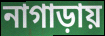
নাগাড়ায়